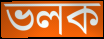
ভলক